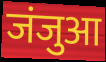
जंजुआ